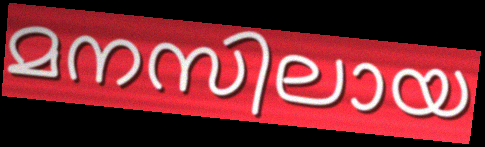
മനസിലായ